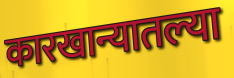
कारखान्यातल्या